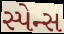
સ્પેન્સ